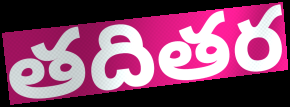
తదితర